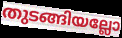
തുടങ്ങിയല്ലോ